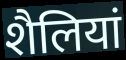
शैलियां